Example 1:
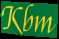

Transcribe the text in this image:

Kbm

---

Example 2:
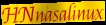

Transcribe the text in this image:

HNnasalinux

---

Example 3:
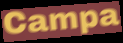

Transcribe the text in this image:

Campa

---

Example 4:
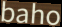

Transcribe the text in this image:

baho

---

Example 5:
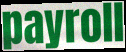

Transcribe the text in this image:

payroll